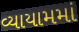
વ્યાયામમાં